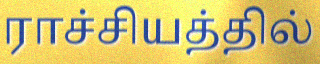
ராச்சியத்தில்